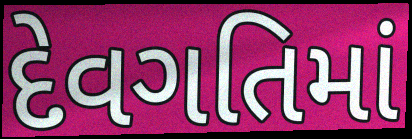
દેવગતિમાં